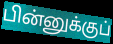
பின்னுக்குப்